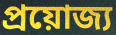
প্রয়োজ্য